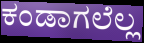
ಕಂಡಾಗಲೆಲ್ಲ